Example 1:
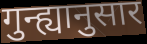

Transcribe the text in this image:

गुन्ह्यानुसार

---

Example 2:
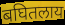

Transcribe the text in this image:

बघितलाय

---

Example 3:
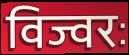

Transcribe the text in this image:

विज्वरः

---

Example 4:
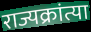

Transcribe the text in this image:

राज्यक्रांत्या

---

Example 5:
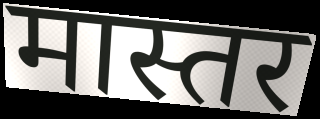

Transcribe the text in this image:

मास्तर